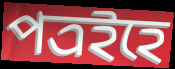
পত্ৰইহে